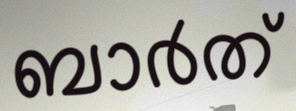
ബാർത്